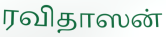
ரவிதாஸன்